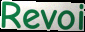
Revoi